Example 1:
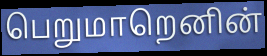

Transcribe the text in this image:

பெறுமாறெனின்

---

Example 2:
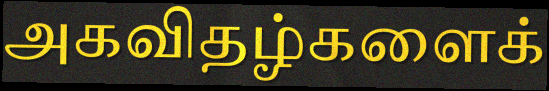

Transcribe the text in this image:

அகவிதழ்களைக்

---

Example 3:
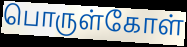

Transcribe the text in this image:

பொருள்கோள்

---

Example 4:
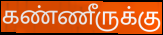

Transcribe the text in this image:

கண்ணீருக்கு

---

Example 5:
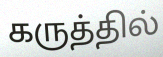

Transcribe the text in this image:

கருத்தில்